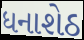
ધનાશેઠ